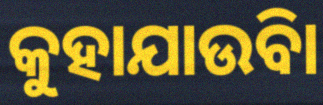
କୁହାଯାଉିବା